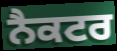
ਨੈਕਟਰ